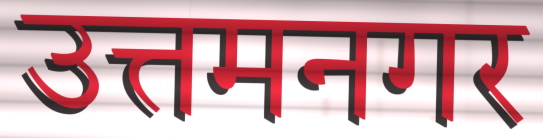
उत्तमनगर